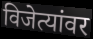
विजेत्यांवर